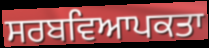
ਸਰਬਵਿਆਪਕਤਾ